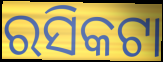
ରସିକଟା